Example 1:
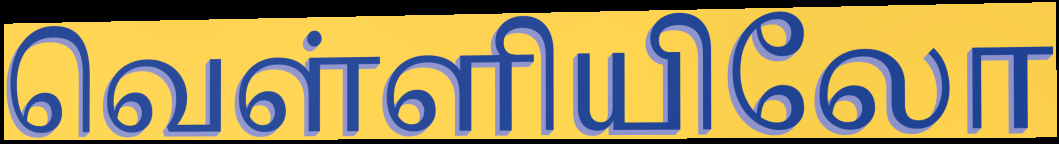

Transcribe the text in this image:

வெள்ளியிலோ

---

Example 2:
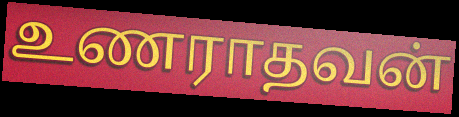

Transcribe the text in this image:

உணராதவன்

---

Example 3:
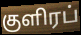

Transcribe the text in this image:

குளிரப்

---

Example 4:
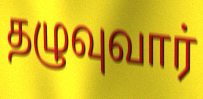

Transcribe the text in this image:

தழுவுவார்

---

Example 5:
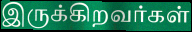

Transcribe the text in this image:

இருக்கிறவர்கள்